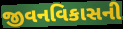
જીવનવિકાસની